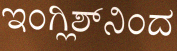
ಇಂಗ್ಲಿಶ್‌ನಿಂದ